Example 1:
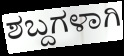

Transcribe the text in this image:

ಶಬ್ದಗಳಾಗಿ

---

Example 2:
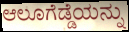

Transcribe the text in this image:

ಆಲೂಗೆಡ್ಡೆಯನ್ನು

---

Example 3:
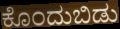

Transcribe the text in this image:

ಕೊಂದುಬಿಡು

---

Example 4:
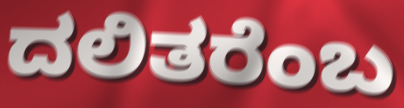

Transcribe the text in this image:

ದಲಿತರೆಂಬ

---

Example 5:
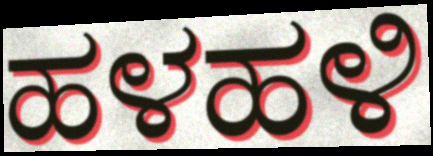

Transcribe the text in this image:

ಹಳಹಳಿ